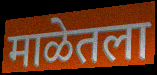
माळेतला